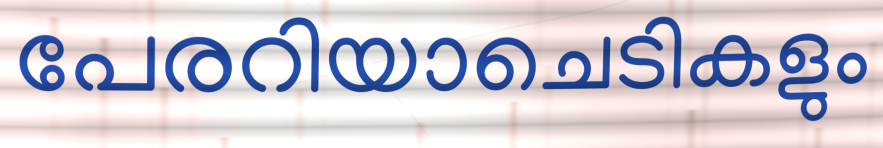
പേരറിയാചെടികളും